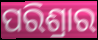
ପରିଶ୍ରାର